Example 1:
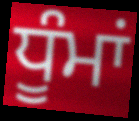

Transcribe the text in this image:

ਧੂੰਮਾਂ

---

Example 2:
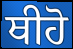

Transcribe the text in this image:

ਥੀਹੋ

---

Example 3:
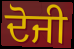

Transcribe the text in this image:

ਦੋਜੀ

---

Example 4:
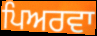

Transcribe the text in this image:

ਪਿਅਰਵਾ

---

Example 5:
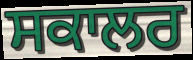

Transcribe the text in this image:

ਸਕਾਲਰ